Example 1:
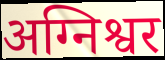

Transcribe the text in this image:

अग्निश्वर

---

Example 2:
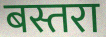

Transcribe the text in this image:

बस्तरा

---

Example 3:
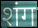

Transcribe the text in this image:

शंग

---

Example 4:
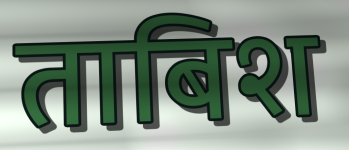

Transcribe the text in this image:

ताबिश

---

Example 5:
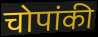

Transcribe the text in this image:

चोपांकी